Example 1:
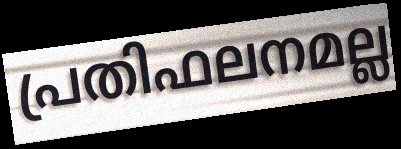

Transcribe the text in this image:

പ്രതിഫലനമല്ല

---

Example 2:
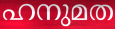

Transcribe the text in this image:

ഹനുമത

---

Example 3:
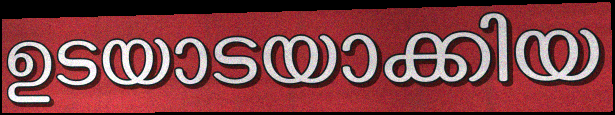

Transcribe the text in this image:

ഉടയാടയാക്കിയ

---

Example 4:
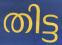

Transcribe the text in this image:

തിട്ട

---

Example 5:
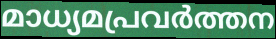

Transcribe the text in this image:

മാധ്യമപ്രവർത്തന